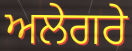
ਅਲੇਗਰੇ